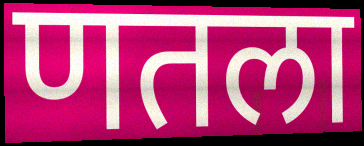
णतला